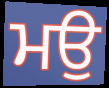
ਮਉ